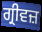
ਗ੍ਰੀਵਜ਼